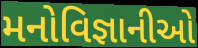
મનોવિજ્ઞાનીઓ